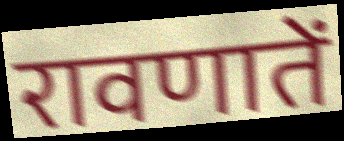
रावणातें